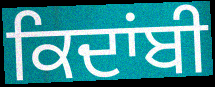
ਕਿਦਾਂਬੀ